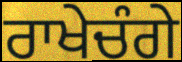
ਰਾਖੇਚੰਗੇ